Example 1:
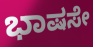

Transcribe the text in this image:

ಭಾಷಸೇ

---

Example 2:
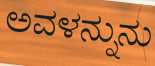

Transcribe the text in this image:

ಅವಳನ್ನುನು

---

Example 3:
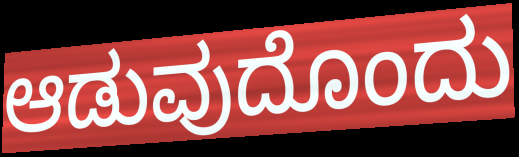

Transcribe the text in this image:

ಆಡುವುದೊಂದು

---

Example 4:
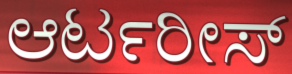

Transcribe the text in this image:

ಆರ್ಟರೀಸ್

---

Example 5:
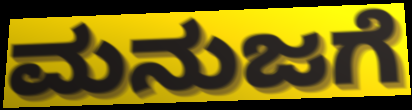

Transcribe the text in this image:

ಮನುಜಗೆ